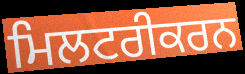
ਮਿਲਟਰੀਕਰਨ